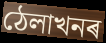
ঠেলাখনৰ